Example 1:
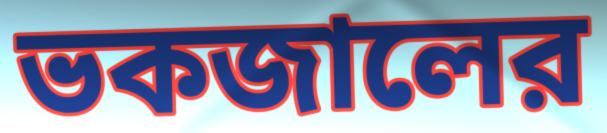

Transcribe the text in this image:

ভকজালের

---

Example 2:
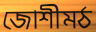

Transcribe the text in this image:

জোশীমঠ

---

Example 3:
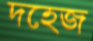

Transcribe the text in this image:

দহেজ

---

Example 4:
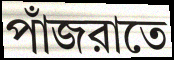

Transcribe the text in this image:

পাঁজরাতে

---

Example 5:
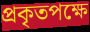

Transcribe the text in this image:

প্রকৃতপক্ষে